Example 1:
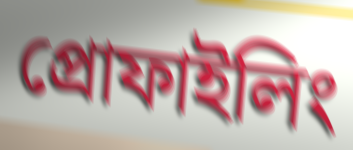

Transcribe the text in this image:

প্রোফাইলিং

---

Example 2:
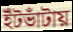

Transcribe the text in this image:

ইঁটভাঁটায়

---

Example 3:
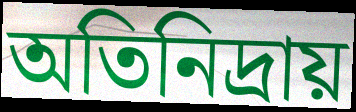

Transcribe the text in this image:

অতিনিদ্রায়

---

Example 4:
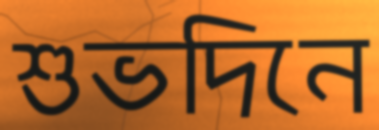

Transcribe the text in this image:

শুভদিনে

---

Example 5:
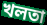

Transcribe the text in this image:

খলতা